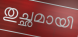
തുച്ഛമായി